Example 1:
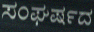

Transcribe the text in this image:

ಸಂಘರ್ಷದ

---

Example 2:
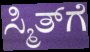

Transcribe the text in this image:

ಸ್ಮಿತ್‌ಗೆ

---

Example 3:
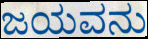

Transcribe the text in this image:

ಜಯವನು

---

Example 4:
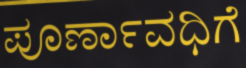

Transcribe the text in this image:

ಪೂರ್ಣಾವಧಿಗೆ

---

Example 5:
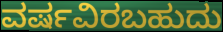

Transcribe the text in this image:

ವರ್ಷವಿರಬಹುದು